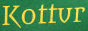
Kottur